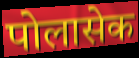
पोलासेक